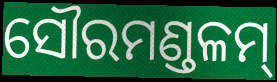
ସୌରମଣ୍ଡଳମ୍